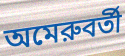
অমেরুবর্তী